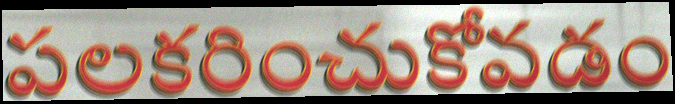
పలకరించుకోవడం